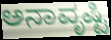
ಅನಾವೃಷ್ಟಿ